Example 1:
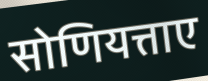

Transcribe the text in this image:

सोणियत्ताए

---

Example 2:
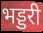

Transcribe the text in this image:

भड्डरी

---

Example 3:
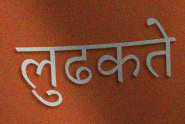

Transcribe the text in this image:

लुढकते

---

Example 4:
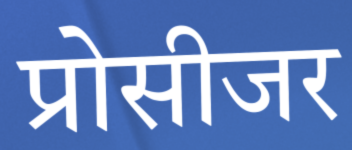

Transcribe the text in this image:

प्रोसीजर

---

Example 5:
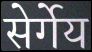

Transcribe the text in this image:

सेर्गेय